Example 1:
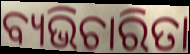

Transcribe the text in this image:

ବ୍ୟଭିଚାରିତା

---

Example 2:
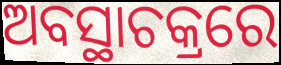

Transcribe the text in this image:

ଅବସ୍ଥାଚକ୍ରରେ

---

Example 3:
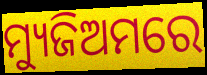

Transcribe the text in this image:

ମ୍ୟୁଜିଅମରେ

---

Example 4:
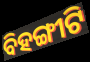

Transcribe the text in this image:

ବିହଙ୍ଗୀଟି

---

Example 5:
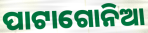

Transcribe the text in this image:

ପାଟାଗୋନିଆ